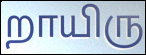
றாயிரு